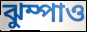
ঝুম্পাও